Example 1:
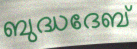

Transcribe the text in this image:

ബുദ്ധദേബ്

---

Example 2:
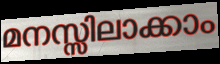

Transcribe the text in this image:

മനസ്സിലാക്കാം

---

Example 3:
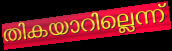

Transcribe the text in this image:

തികയാറില്ലെന്ന്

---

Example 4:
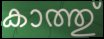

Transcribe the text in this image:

കാത്തു്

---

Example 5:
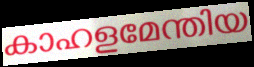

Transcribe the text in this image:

കാഹളമേന്തിയ